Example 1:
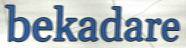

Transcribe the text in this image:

bekadare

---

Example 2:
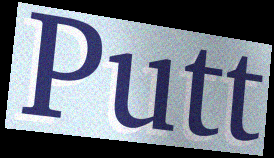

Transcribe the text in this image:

Putt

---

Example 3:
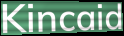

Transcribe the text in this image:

Kincaid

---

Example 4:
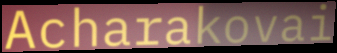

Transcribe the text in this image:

Acharakovai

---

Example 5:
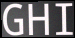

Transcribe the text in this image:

GHI